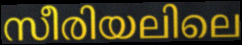
സീരിയലിലെ